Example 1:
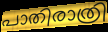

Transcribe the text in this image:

പാതിരാത്രി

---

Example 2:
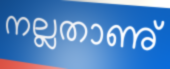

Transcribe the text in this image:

നല്ലതാണു്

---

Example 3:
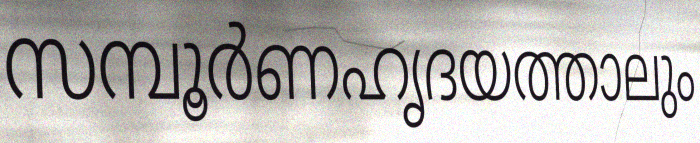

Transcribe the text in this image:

സമ്പൂർണഹൃദയത്താലും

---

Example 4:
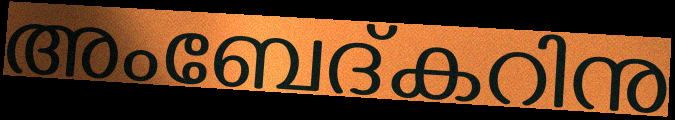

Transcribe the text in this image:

അംബേദ്കറിനു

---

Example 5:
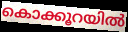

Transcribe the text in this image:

കൊക്കൂറയിൽ